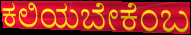
ಕಲಿಯಬೇಕೆಂಬ